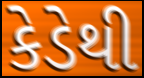
કેડેથી